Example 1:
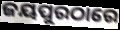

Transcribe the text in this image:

ଜୟପୁରଠାରେ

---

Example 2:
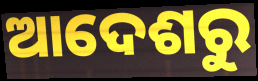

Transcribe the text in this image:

ଆଦେଶରୁ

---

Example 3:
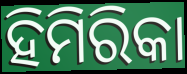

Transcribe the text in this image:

ହିମିରିକା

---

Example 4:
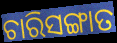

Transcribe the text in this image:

ଚାରିସଙ୍ଗାତ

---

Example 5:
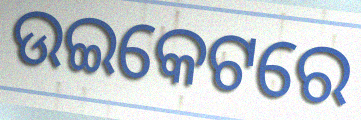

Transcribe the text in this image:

ଉଇକେଟରେ